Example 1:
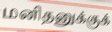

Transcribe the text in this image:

மனிதனுக்குக்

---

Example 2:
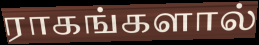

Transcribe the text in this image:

ராகங்களால்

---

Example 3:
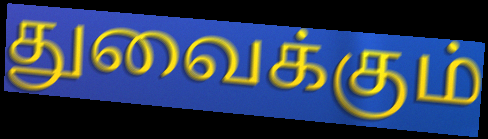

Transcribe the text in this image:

துவைக்கும்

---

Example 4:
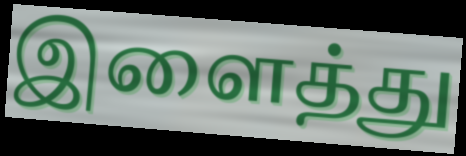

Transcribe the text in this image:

இளைத்து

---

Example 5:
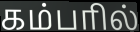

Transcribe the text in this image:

கம்பரில்